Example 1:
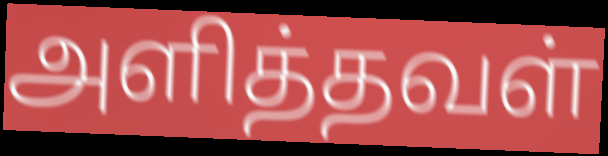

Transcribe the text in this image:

அளித்தவள்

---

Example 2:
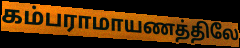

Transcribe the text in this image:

கம்பராமாயணத்திலே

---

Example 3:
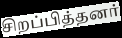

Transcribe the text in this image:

சிறப்பித்தனர்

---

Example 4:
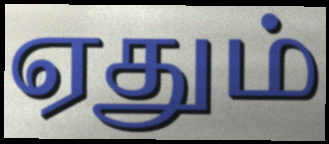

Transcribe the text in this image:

ஏதும்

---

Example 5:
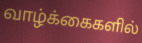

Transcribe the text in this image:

வாழ்க்கைகளில்